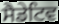
ਸੈਡੇਟਿਵ